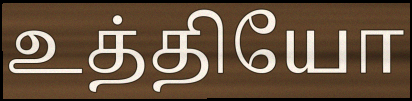
உத்தியோ